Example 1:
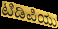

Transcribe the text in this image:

ಟಿಡಿಪಿಯು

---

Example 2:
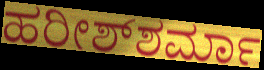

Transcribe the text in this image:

ಹರೀಶ್‌ಶರ್ಮಾ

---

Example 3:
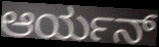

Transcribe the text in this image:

ಆರ್ಯನ್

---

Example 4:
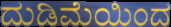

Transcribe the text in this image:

ದುಡಿಮೆಯಿಂದ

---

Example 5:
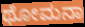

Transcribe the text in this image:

ಥೋಮನಾ